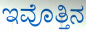
ಇವೊತ್ತಿನ